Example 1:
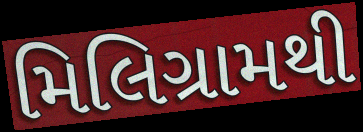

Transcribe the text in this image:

મિલિગ્રામથી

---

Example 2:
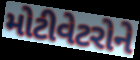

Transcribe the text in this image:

મોટીવેટરોને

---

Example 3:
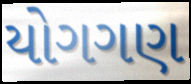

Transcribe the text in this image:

યોગગણ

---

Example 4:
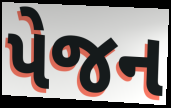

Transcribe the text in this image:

પેજન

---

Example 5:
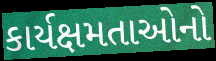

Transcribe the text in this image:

કાર્યક્ષમતાઓનો